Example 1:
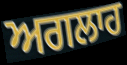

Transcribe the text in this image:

ਅਗਲਾਹ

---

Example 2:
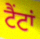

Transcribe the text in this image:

ਟੈਂਟਾਂ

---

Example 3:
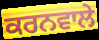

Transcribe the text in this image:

ਕਰਨਵਾਲੇ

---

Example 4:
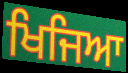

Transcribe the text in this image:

ਖਿਜਿਆ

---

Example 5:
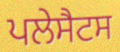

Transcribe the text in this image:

ਪਲੇਸੈਟਸ